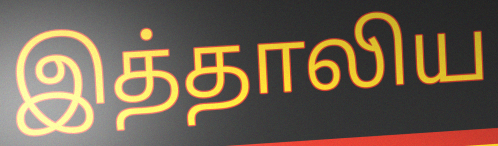
இத்தாலிய